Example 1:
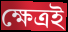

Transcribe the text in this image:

ক্ষেত্ৰই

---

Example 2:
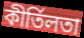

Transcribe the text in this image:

কীৰ্তিলতা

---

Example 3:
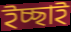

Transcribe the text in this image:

ইচ্ছাই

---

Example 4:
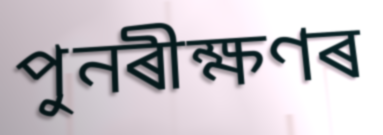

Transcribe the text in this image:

পুনৰীক্ষণৰ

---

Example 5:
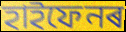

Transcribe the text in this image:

হাইফেনৰ